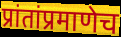
प्रांतांप्रमाणेच